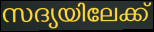
സദ്യയിലേക്ക്